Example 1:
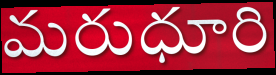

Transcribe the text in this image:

మరుధూరి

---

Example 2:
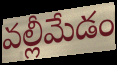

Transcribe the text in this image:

వల్లీమేడం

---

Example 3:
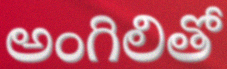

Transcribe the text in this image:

అంగిలితో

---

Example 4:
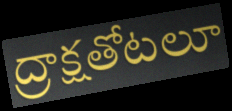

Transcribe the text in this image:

ద్రాక్షతోటలూ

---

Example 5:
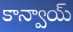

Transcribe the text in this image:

కాన్వాయ్